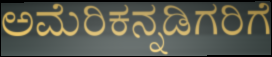
ಅಮೆರಿಕನ್ನಡಿಗರಿಗೆ